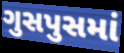
ગુસપુસમાં